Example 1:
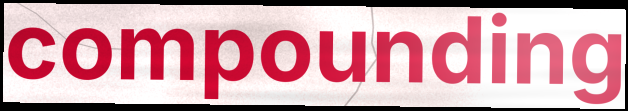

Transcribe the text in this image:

compounding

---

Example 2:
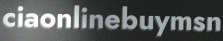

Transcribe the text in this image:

ciaonlinebuymsn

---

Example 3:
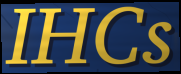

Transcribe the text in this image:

IHCs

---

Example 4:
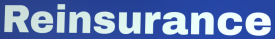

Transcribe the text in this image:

Reinsurance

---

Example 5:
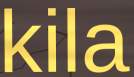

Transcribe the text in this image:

kila